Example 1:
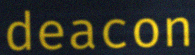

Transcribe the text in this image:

deacon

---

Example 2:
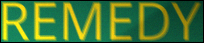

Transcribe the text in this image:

REMEDY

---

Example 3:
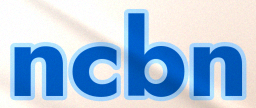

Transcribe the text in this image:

ncbn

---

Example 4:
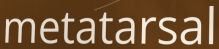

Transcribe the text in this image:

metatarsal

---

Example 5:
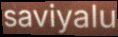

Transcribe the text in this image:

saviyalu